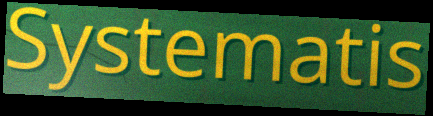
Systematis